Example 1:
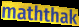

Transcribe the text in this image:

maththak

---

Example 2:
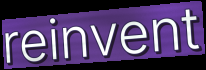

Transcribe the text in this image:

reinvent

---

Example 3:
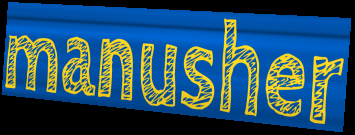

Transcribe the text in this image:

manusher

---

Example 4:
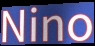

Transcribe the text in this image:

Nino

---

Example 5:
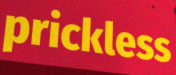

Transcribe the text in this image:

prickless